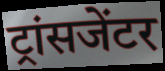
ट्रांसजेंटर